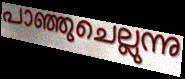
പാഞ്ഞുചെല്ലുന്നു